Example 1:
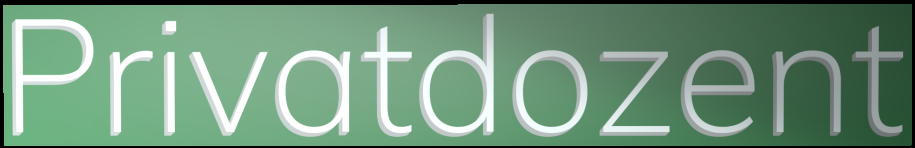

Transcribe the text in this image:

Privatdozent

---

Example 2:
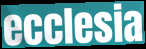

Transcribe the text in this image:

ecclesia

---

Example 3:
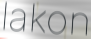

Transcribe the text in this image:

lakon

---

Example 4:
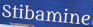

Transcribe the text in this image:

Stibamine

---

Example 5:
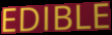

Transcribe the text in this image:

EDIBLE